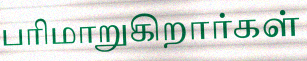
பரிமாறுகிறார்கள்